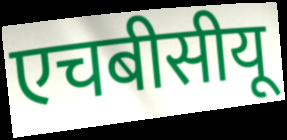
एचबीसीयू